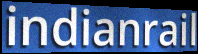
indianrail